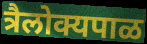
त्रैलोक्यपाळ